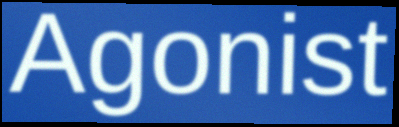
Agonist